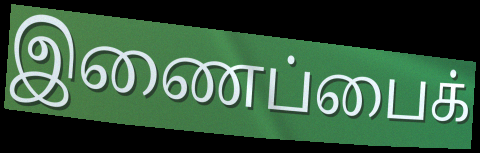
இணைப்பைக்